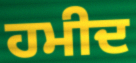
ਹਮੀਦ